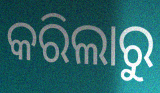
କରିଲାରୁ